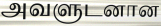
அவளுடனான